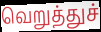
வெறுத்துச்